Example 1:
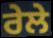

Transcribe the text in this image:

ਰੇਲੇ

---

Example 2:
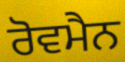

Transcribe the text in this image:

ਰੋਵਮੈਨ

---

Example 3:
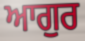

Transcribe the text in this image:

ਆਗੁਰ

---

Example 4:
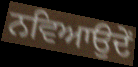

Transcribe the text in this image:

ਨਵਿਆਉਦੇਂ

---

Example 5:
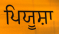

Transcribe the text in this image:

ਪਿਯੂਸ਼ਾ